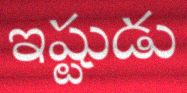
ఇష్టుడు